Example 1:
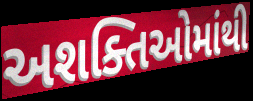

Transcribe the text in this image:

અશક્તિઓમાંથી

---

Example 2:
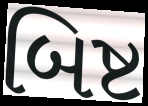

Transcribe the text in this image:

બિષ્ટ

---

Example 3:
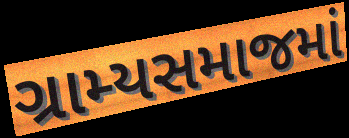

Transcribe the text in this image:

ગ્રામ્યસમાજમાં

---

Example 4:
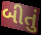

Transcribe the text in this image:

બીતું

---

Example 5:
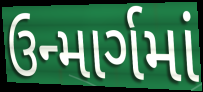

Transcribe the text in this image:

ઉન્માર્ગમાં